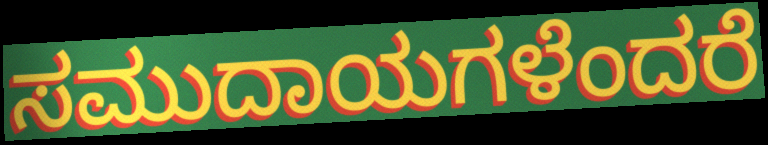
ಸಮುದಾಯಗಳೆಂದರೆ